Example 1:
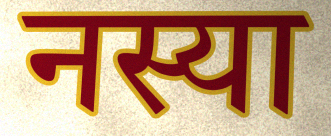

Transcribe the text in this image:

नस्या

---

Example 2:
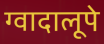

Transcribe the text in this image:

ग्वादालूपे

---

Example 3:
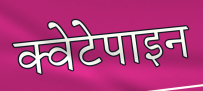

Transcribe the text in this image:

क्वेटेपाइन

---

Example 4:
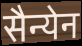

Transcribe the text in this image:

सैन्येन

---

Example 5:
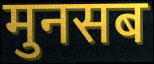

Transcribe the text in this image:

मुनसब